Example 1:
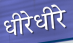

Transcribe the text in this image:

धीरेधीरे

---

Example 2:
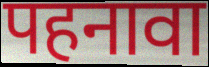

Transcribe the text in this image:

पहनावा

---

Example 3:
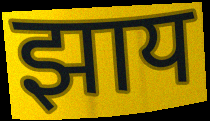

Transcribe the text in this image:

झाय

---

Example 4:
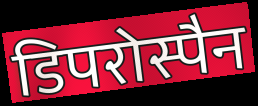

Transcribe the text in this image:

डिपरोस्पैन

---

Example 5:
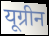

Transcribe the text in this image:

यूग्रीन